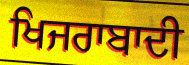
ਖਿਜਰਾਬਾਦੀ